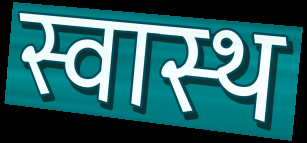
स्वास्थ